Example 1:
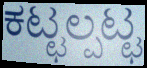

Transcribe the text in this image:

ಕಟ್ಟಲ್ಪಟ್ಟ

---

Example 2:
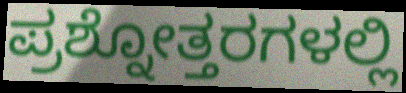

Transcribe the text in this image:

ಪ್ರಶ್ನೋತ್ತರಗಳಲ್ಲಿ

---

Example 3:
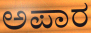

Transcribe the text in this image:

ಅಪಾರ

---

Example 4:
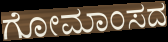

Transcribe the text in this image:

ಗೋಮಾಂಸದ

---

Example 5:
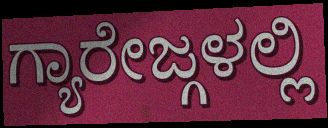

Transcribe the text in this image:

ಗ್ಯಾರೇಜ್ಗಳಲ್ಲಿ